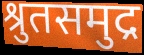
श्रुतसमुद्र